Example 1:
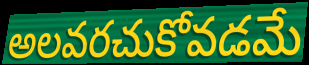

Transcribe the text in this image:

అలవరచుకోవడమే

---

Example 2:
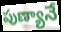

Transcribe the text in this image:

పుణ్యానే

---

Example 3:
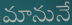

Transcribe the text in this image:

మానునే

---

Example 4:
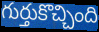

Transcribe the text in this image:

గుర్తుకొచ్చింది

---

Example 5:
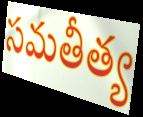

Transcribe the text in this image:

సమతీత్య